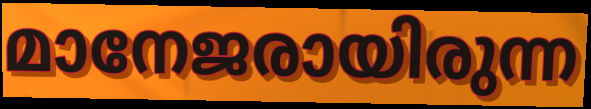
മാനേജരായിരുന്ന